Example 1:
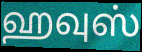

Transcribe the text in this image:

ஹவுஸ்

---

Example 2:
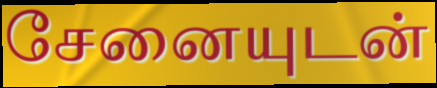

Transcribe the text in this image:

சேனையுடன்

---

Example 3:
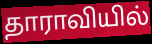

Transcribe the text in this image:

தாராவியில்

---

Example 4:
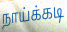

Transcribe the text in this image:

நாய்க்கடி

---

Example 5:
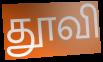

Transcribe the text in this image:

தூவி